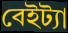
বেইট্যা